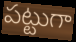
పట్టుగా